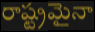
రాష్ట్రమైనా